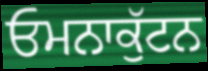
ਓਮਨਾਕੁੱਟਨ